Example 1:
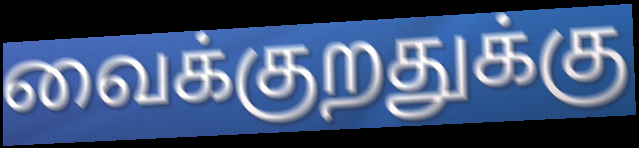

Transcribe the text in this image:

வைக்குறதுக்கு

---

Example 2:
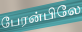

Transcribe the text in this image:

பேரன்பிலே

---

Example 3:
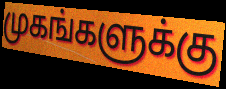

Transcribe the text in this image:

முகங்களுக்கு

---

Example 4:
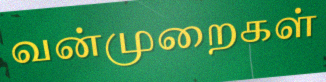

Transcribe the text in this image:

வன்முறைகள்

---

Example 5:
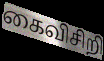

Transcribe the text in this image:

கைவிசிறி